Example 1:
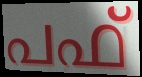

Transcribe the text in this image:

പഫ്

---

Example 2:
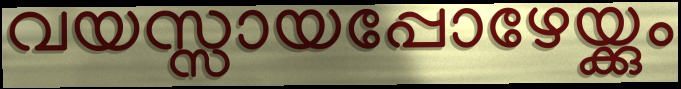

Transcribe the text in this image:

വയസ്സായപ്പോഴേയ്ക്കും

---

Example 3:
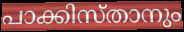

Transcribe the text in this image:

പാക്കിസ്താനും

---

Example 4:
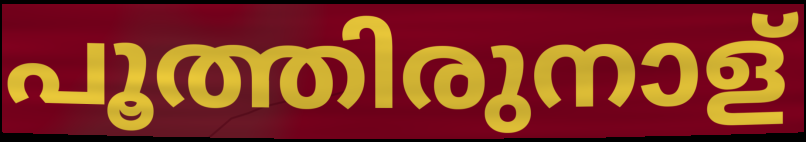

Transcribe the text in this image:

പൂത്തിരുനാള്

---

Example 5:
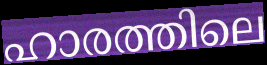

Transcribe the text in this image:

ഹാരത്തിലെ